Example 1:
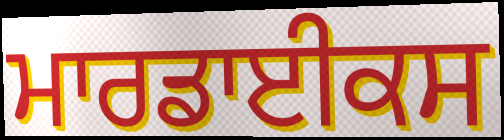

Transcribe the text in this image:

ਮਾਰਡਾਈਕਸ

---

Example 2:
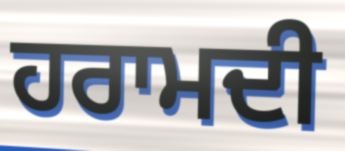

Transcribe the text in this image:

ਹਰਾਮਦੀ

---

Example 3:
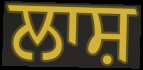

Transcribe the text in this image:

ਲਾਸ਼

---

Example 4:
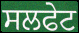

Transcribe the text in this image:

ਸਲਫੇਟ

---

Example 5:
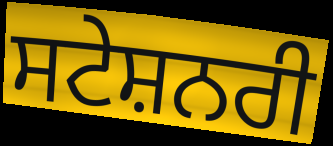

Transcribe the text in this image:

ਸਟੇਸ਼ਨਰੀ